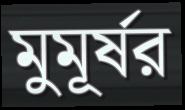
মুমূর্ষর